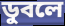
ডুবলে